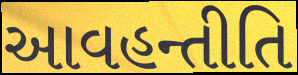
આવહન્તીતિ